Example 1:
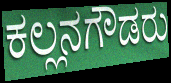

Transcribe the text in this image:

ಕಲ್ಲನಗೌಡರು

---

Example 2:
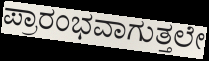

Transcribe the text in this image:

ಪ್ರಾರಂಭವಾಗುತ್ತಲೇ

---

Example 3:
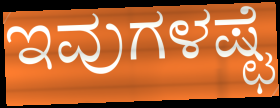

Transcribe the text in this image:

ಇವುಗಳಷ್ಟೆ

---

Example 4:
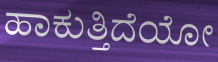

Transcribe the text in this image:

ಹಾಕುತ್ತಿದೆಯೋ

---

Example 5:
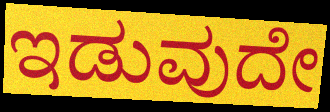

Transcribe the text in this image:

ಇಡುವುದೇ